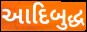
આદિબુદ્ધ